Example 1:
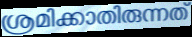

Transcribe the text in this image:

ശ്രമിക്കാതിരുന്നത്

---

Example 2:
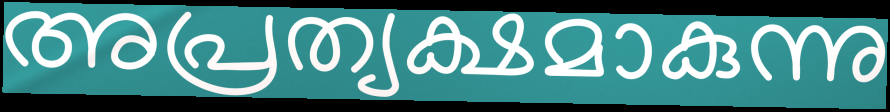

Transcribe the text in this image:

അപ്രത്യക്ഷമാകുന്നു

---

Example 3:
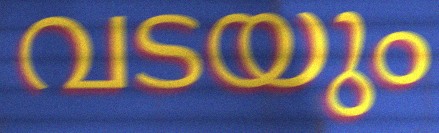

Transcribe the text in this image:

വടയും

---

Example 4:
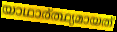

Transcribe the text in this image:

യാഥാര്ത്ഥ്യമായത്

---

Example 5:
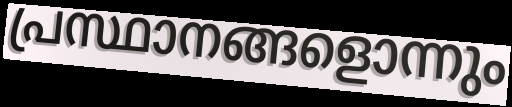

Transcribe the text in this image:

പ്രസ്ഥാനങ്ങളൊന്നും